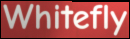
Whitefly